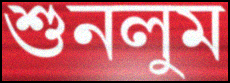
শুনলুম